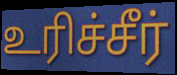
உரிச்சீர்